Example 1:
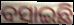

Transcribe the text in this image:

ବସାଇଛି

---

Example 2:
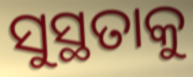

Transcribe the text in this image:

ସୁସ୍ଥତାକୁ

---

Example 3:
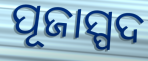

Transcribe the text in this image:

ପୂଜାସ୍ପଦ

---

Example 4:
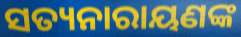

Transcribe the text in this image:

ସତ୍ୟନାରାୟଣଙ୍କ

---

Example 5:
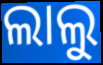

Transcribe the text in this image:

ଲାଲୁ